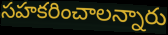
సహకరించాలన్నారు